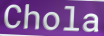
Chola